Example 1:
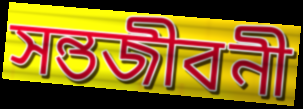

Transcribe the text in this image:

সন্তজীবনী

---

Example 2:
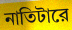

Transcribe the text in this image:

নাতিটারে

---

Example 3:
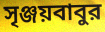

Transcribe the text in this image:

সৃঞ্জয়বাবুর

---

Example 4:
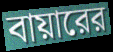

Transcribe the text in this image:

বায়ারের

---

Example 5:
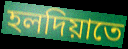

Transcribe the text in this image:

হলদিয়াতে